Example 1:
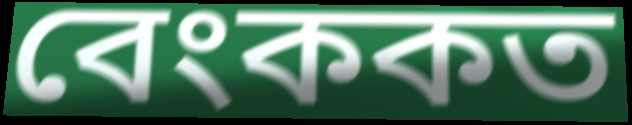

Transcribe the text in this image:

বেংককত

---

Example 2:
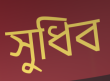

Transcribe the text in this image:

সুধিব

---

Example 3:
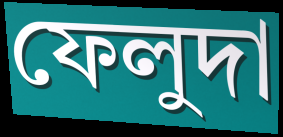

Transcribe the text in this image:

ফেলুদা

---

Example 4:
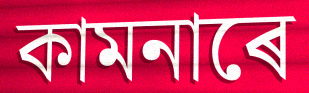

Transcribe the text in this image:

কামনাৰে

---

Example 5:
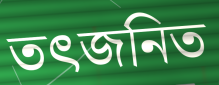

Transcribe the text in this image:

তৎজনিত